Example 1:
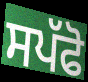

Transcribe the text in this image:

ਸਪੱਫੋ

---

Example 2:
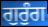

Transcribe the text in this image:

ਗੁਰੁੰਗ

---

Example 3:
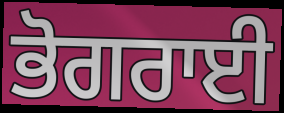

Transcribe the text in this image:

ਭੋਗਰਾਈ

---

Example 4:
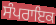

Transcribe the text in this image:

ਸੰਪਰਾਇਕ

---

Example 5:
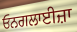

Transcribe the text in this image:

ਓਨਗਲਾਈਜ਼ਾ